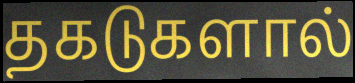
தகடுகளால்